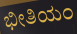
ಭೀತಿಯಂ